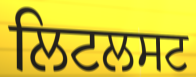
ਲਿਟਲਸਟ